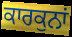
ਕਾਰਕੁਨਾਂ